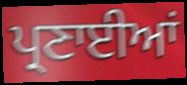
ਪ੍ਰਣਾਈਆਂ